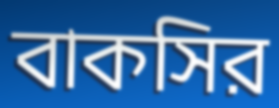
বাকসির